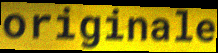
originale